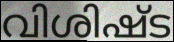
വിശിഷ്ട